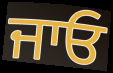
ਜਾਓ